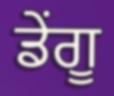
ਡੇਂਗੂ